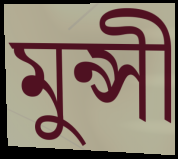
মুন্সী